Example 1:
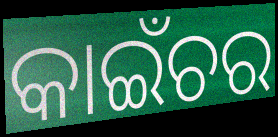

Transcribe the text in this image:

କାଇଁଚର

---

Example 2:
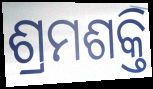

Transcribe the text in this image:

ଶ୍ରମଶକ୍ତି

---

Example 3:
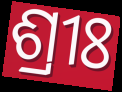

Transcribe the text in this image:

ଶ୍ରୀଃ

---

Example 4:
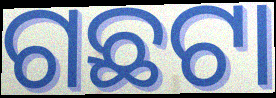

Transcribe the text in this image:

ଗଛଟା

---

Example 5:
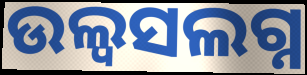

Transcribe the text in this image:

ଉଲ୍ୱସଲଗ୍ନ